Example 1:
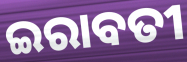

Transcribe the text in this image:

ଇରାବତୀ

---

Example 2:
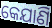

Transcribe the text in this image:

କେଯାଣି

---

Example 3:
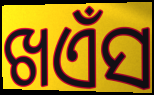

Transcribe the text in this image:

ଖଏଁସ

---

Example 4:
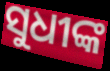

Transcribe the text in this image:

ସୁଧୀଙ୍କ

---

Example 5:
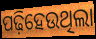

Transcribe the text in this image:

ପଢ଼ିହେଉଥିଲା